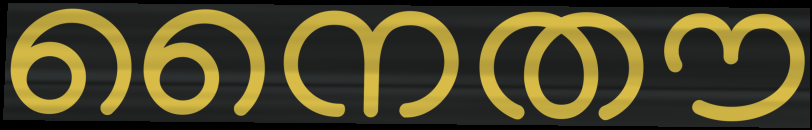
നൈതൗ